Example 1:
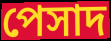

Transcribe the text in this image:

পেসাদ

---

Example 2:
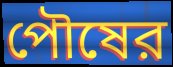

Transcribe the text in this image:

পৌষের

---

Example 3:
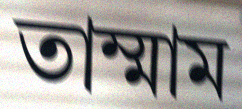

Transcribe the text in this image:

তাম্মাম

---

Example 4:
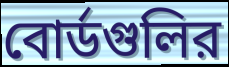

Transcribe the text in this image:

বোর্ডগুলির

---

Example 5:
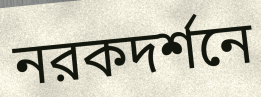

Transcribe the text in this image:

নরকদর্শনে